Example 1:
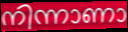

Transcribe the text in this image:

നിന്നാണാ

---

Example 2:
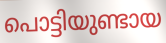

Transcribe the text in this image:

പൊട്ടിയുണ്ടായ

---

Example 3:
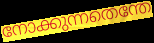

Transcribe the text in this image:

നോക്കുന്നതെന്തേ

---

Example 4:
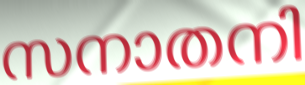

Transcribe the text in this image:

സനാതനി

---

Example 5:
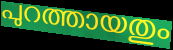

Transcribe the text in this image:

പുറത്തായതും